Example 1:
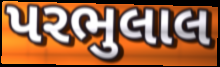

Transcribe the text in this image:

પરભુલાલ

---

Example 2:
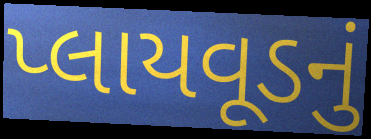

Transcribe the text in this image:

પ્લાયવૂડનું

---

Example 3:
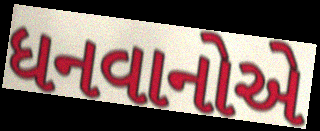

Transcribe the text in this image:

ધનવાનોએ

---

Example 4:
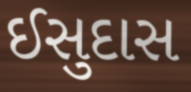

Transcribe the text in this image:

ઈસુદાસ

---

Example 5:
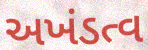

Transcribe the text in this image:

અખંડત્વ